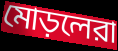
মোড়লেরা